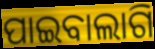
ପାଇବାଲାଗି